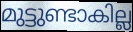
മുട്ടുണ്ടാകില്ല